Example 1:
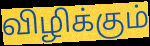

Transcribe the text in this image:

விழிக்கும்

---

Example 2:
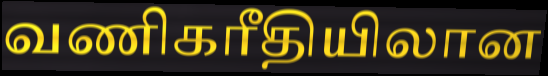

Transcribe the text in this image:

வணிகரீதியிலான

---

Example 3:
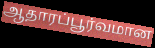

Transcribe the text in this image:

ஆதாரப்பூர்வமான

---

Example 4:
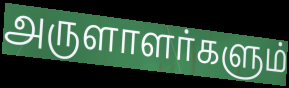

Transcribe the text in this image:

அருளாளர்களும்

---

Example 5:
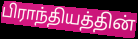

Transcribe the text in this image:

பிராந்தியத்தின்